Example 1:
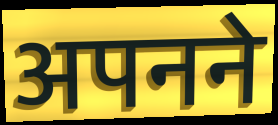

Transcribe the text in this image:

अपनने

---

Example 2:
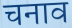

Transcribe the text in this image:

चनाव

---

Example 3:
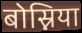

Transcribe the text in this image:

बोस्निया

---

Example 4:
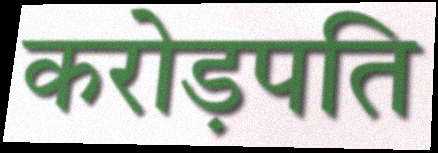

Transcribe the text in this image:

करोड़पति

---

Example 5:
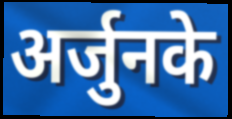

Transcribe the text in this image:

अर्जुनके